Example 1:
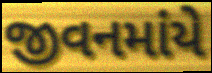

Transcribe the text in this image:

જીવનમાંયે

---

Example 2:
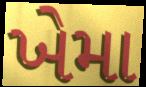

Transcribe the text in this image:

ખેમા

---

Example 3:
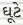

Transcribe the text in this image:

ઘૂટે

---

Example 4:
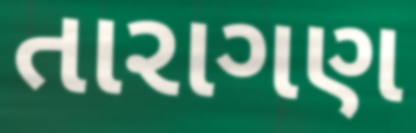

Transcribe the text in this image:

તારાગણ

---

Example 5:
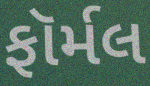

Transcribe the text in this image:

ફૉર્મલ